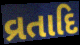
વ્રતાદિ